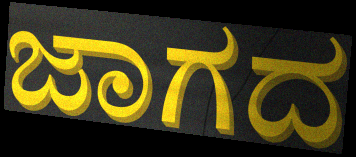
ಜಾಗದ